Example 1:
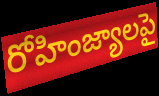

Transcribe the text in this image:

రోహింజ్యాలపై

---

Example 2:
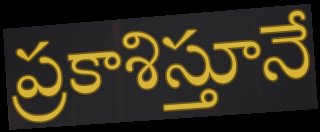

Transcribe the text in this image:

ప్రకాశిస్తూనే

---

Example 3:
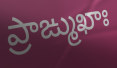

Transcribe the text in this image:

ప్రాఙ్ముఖాః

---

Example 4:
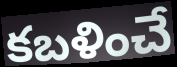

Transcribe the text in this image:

కబళించే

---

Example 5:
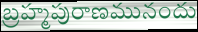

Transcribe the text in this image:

బ్రహ్మపురాణమునందు